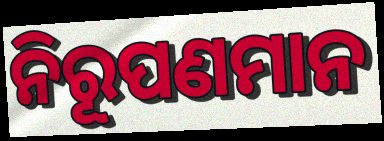
ନିରୂପଣମାନ